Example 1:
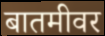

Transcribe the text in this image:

बातमीवर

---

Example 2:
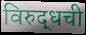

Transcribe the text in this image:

विरुद्धची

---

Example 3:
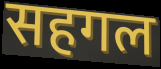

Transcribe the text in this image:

सहगल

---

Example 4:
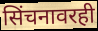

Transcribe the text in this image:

सिंचनावरही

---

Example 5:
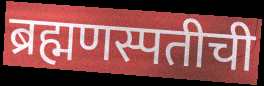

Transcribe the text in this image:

ब्रह्मणस्पतीची